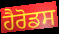
ਹੈਰੋਡਸ